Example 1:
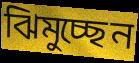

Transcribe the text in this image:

ঝিমুচ্ছেন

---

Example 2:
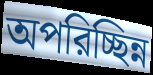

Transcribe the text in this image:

অপরিচ্ছিন্ন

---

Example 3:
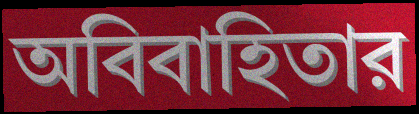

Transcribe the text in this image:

অবিবাহিতার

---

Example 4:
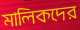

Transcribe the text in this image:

মালিকদের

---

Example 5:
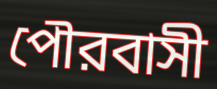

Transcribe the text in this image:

পৌরবাসী